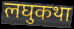
लघुकथा